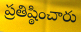
ప్రతిష్ఠించారు